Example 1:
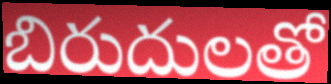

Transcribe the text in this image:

బిరుదులతో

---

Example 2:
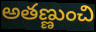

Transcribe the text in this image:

అతణ్ణుంచి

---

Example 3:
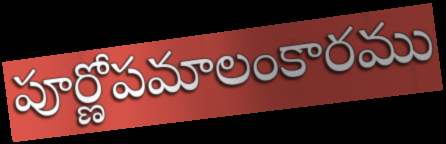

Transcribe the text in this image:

పూర్ణోపమాలంకారము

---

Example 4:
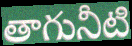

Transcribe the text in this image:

తాగునీటి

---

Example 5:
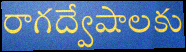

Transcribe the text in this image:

రాగద్వేషాలకు